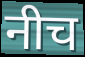
नीच